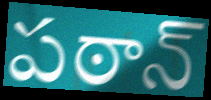
పఠాన్